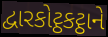
દ્વારકોટ્ઠકટ્ઠાને